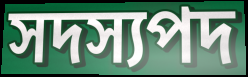
সদস্যপদ